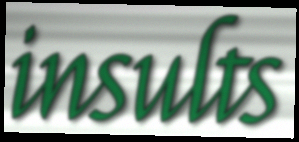
insults